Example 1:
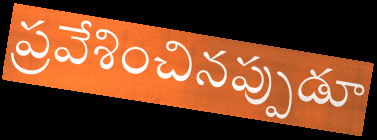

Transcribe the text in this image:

ప్రవేశించినప్పుడూ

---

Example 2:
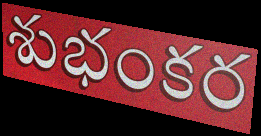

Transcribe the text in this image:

శుభంకర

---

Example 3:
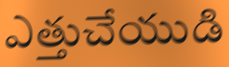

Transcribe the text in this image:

ఎత్తుచేయుడి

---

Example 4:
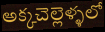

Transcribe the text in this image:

అక్కచెల్లెళ్ళలో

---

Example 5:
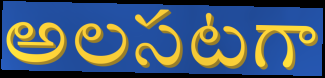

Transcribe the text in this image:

అలసటగా